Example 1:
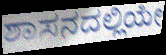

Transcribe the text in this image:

ಶಾಸನದಲ್ಲಿಯೇ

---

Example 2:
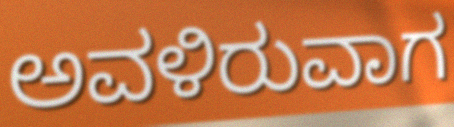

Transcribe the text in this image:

ಅವಳಿರುವಾಗ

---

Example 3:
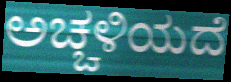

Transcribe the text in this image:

ಅಚ್ಚಳಿಯದೆ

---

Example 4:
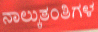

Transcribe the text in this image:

ನಾಲ್ಕುತಂತಿಗಳ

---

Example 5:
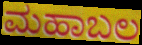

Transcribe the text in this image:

ಮಹಾಬಲ